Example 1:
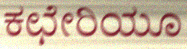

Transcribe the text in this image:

ಕಛೇರಿಯೂ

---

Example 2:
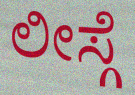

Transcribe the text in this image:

ಲೀಸ್ಗೆ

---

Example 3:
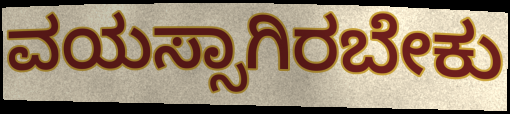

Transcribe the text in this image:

ವಯಸ್ಸಾಗಿರಬೇಕು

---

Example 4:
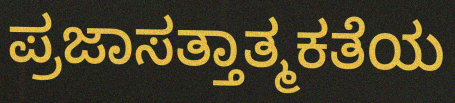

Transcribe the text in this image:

ಪ್ರಜಾಸತ್ತಾತ್ಮಕತೆಯ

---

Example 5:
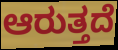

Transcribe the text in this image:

ಆರುತ್ತದೆ